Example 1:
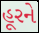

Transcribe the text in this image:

હૂરને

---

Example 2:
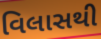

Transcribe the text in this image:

વિલાસથી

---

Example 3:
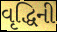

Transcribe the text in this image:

વૃદ્ધિની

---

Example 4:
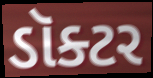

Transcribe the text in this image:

ડૉક્ટર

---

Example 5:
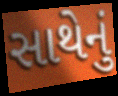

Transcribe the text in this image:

સાથેનું